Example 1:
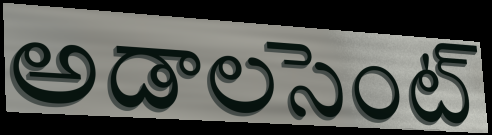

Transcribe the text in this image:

అడాలసెంట్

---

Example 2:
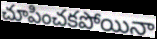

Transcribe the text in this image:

చూపించకపోయినా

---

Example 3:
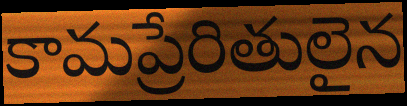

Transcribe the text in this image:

కామప్రేరితులైన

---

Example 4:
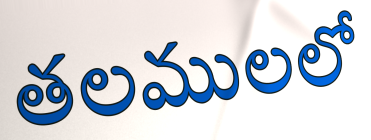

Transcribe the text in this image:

తలములలో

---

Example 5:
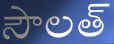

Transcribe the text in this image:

సౌలత్